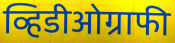
व्हिडीओग्राफी